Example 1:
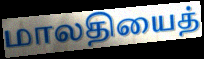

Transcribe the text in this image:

மாலதியைத்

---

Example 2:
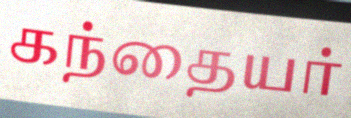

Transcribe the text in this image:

கந்தையர்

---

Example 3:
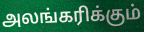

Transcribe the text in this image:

அலங்கரிக்கும்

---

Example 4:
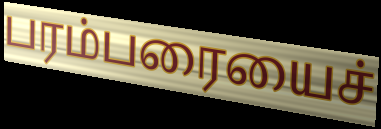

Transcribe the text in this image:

பரம்பரையைச்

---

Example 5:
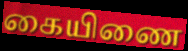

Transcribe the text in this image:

கையிணை